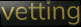
vetting